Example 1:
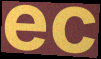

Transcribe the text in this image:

ec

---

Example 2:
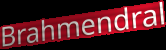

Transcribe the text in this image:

Brahmendral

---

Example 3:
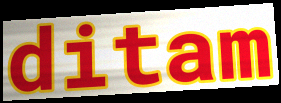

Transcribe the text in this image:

ditam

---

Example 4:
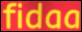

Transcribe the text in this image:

fidaa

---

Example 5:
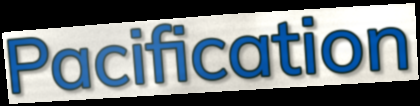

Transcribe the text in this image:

Pacification